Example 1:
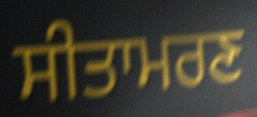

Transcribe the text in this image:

ਸੀਤਾਮਰਣ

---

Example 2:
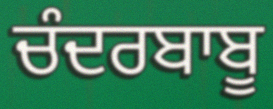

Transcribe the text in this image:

ਚੰਦਰਬਾਬੂ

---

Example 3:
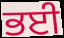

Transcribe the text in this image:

ਭਈ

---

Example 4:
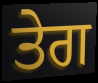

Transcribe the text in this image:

ਤੇਗ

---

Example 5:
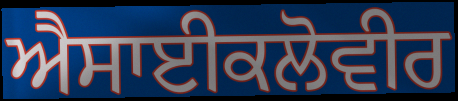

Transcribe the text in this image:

ਐਸਾਈਕਲੋਵੀਰ